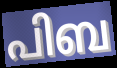
പിബ